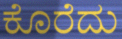
ಕೊರೆದು